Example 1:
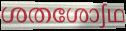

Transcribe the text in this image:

ശതശോഽഥ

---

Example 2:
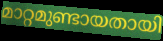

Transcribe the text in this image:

മാറ്റമുണ്ടായതായി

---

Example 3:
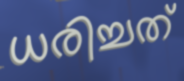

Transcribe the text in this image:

ധരിച്ചത്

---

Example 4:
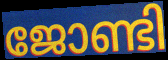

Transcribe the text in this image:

ജോണ്ടി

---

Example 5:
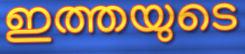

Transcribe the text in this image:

ഇത്തയുടെ